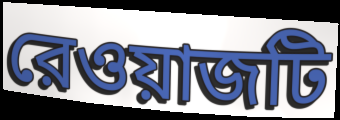
রেওয়াজটি